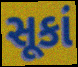
સૂકાં